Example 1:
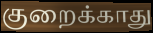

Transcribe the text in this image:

குறைக்காது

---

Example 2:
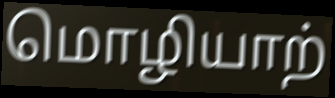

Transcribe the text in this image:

மொழியாற்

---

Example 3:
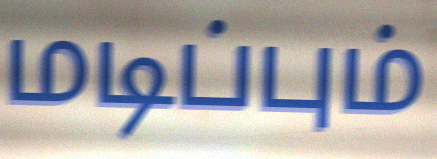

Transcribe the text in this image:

மடிப்பும்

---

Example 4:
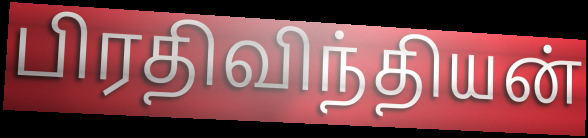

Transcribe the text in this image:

பிரதிவிந்தியன்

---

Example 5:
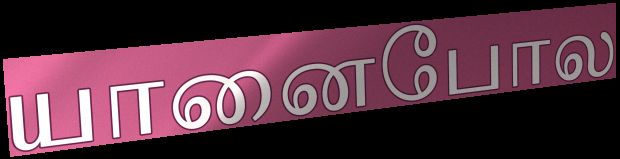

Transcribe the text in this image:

யானைபோல